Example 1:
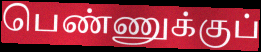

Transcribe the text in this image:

பெண்ணுக்குப்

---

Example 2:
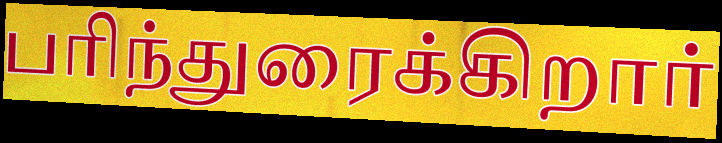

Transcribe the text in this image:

பரிந்துரைக்கிறார்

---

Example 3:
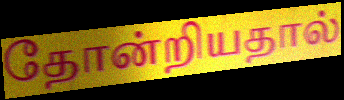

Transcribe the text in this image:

தோன்றியதால்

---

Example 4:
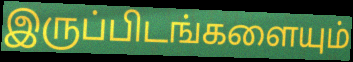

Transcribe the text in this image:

இருப்பிடங்களையும்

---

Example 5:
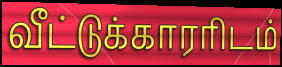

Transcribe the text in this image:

வீட்டுக்காரரிடம்